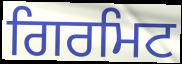
ਗਿਰਮਿਟ